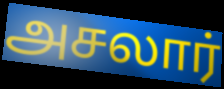
அசலார்